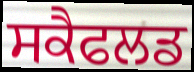
ਸਕੈਫਲਡ